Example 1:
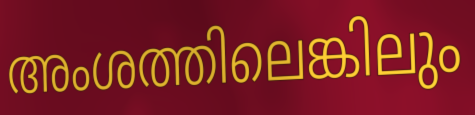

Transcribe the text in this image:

അംശത്തിലെങ്കിലും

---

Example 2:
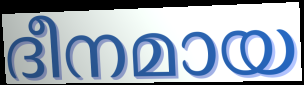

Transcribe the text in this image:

ദീനമായ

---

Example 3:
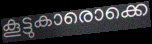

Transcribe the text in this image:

കൂട്ടുകാരൊക്കെ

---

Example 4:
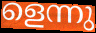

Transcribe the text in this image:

ളെന്നു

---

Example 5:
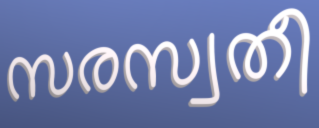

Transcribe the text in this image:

സരസ്വതീ